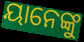
ୟାନେଙ୍କୁ